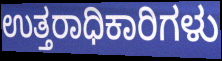
ಉತ್ತರಾಧಿಕಾರಿಗಳು